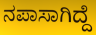
ನಪಾಸಾಗಿದ್ದೆ